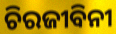
ଚିରଜୀବିନୀ